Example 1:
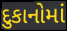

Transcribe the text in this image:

દુકાનોમાં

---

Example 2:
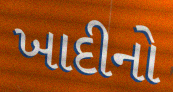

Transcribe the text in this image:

ખાદીનો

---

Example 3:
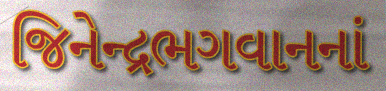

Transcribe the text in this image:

જિનેન્દ્રભગવાનનાં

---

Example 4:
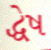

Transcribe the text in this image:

દ્ધેષ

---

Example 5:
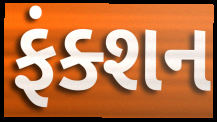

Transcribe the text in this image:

ફંક્શન